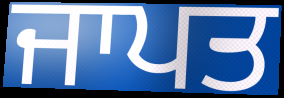
ਜਾਪਤ